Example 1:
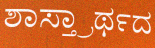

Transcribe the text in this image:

ಶಾಸ್ತ್ರಾರ್ಥದ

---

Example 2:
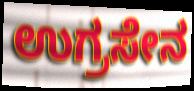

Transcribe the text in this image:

ಉಗ್ರಸೇನ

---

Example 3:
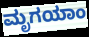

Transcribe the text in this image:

ಮೃಗಯಾಂ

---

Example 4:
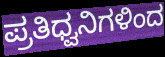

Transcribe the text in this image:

ಪ್ರತಿಧ್ವನಿಗಳಿಂದ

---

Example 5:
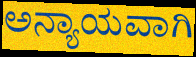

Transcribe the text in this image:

ಅನ್ಯಾಯವಾಗಿ